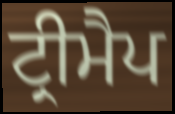
ਟ੍ਰੀਮੈਪ